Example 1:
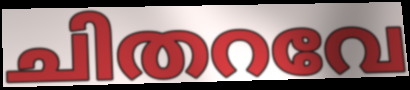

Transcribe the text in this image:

ചിതറവേ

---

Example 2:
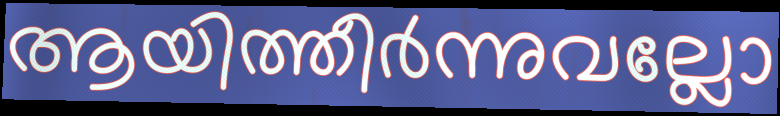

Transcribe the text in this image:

ആയിത്തീർന്നുവല്ലോ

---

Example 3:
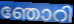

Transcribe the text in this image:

ഞോറി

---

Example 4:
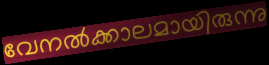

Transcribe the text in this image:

വേനൽക്കാലമായിരുന്നു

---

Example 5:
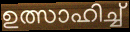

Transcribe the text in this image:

ഉത്സാഹിച്ച്